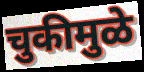
चुकीमुळे